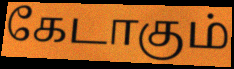
கேடாகும்